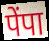
पेंपा